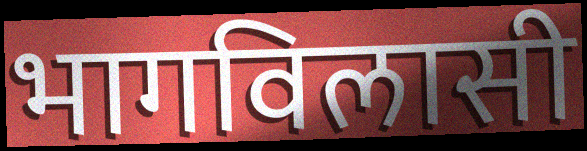
भागविलासी